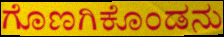
ಗೊಣಗಿಕೊಂಡನು